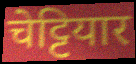
चेट्टियार